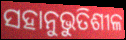
ସହାନୁଭୁତିଶୀଳ